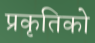
प्रकृतिको